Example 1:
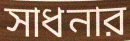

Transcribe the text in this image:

সাধনার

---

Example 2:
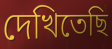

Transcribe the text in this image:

দেখিতেছি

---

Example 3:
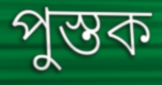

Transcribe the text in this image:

পুস্তক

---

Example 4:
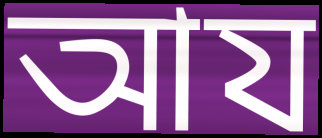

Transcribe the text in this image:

আয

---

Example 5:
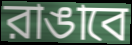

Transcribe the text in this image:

রাঙাবে